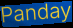
Panday